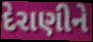
દેરાણીને